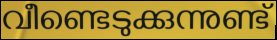
വീണ്ടെടുക്കുന്നുണ്ട്